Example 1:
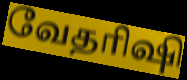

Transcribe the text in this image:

வேதரிஷி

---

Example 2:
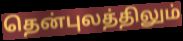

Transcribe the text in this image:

தென்புலத்திலும்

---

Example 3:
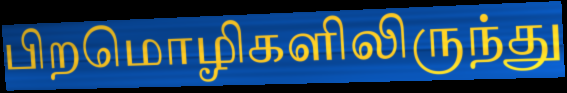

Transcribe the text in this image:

பிறமொழிகளிலிருந்து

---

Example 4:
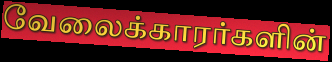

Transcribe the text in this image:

வேலைக்காரர்களின்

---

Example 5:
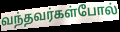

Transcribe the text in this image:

வந்தவர்கள்போல்